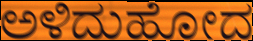
ಅಳಿದುಹೋದ